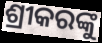
ଶ୍ରୀକରଙ୍କୁ